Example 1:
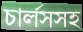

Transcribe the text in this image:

চার্লসসহ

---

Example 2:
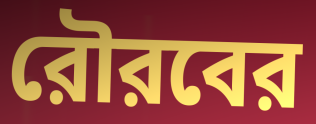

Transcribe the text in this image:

রৌরবের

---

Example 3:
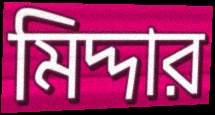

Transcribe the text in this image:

মিদ্দার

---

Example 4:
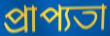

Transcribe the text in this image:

প্রাপ্যতা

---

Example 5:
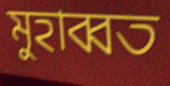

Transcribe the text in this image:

মুহাব্বত